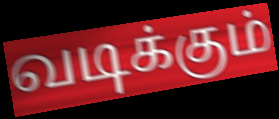
வடிக்கும்